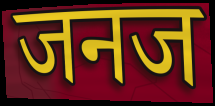
जनज